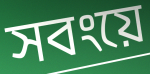
সবংয়ে